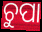
ଚୁପା